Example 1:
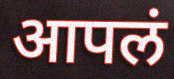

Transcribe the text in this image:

आपलं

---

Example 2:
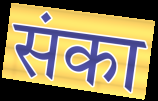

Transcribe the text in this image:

संका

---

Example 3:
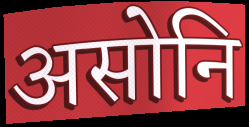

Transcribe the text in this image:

असोनि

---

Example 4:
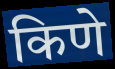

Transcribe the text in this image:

किणे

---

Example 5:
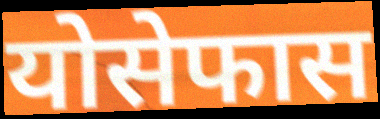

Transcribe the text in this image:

योसेफास